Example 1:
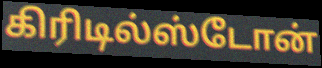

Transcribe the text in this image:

கிரிடில்ஸ்டோன்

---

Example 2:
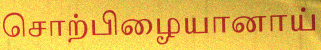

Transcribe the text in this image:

சொற்பிழையானாய்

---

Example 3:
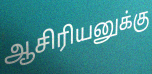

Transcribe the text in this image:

ஆசிரியனுக்கு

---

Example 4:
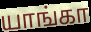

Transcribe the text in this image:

யாங்கா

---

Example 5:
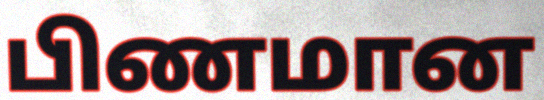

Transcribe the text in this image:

பிணமான